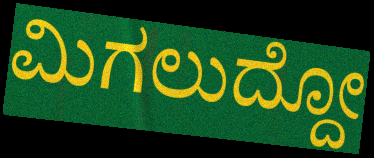
ಮಿಗಲುದ್ದೋ